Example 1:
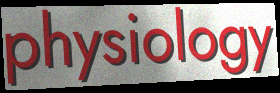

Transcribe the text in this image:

physiology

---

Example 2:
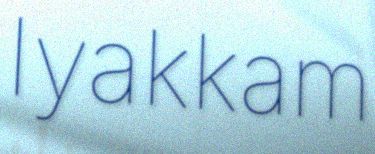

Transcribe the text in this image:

Iyakkam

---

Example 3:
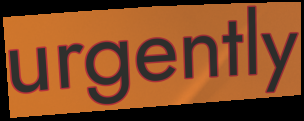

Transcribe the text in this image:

urgently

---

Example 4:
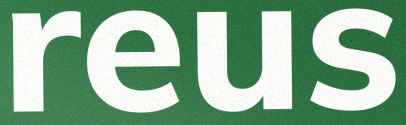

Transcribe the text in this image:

reus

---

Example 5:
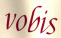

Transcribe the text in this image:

vobis